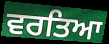
ਵਰਤਿਆ